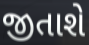
જીતાશે